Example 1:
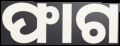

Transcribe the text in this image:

ଫାଗ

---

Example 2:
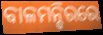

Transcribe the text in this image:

ବାଳମନ୍ଦିରରେ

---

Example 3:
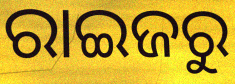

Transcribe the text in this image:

ରାଇଜରୁ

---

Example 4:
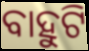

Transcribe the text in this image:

ବାହୁଟି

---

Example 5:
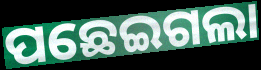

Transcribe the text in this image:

ପଛେଇଗଲା